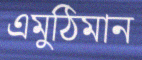
এমুঠিমান